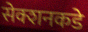
सेक्शनकडे